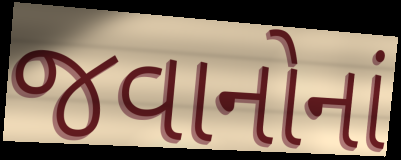
જવાનોનાં